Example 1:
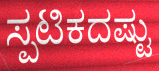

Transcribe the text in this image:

ಸ್ಪಟಿಕದಷ್ಟು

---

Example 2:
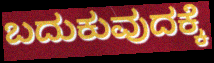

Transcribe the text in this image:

ಬದುಕುವುದಕ್ಕೆ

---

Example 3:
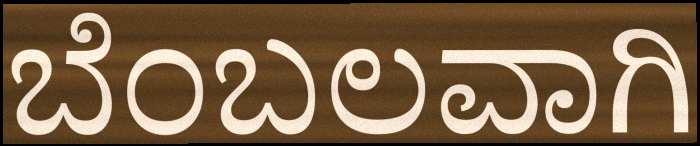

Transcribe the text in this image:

ಬೆಂಬಲವಾಗಿ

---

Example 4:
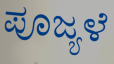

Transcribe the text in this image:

ಪೂಜ್ಯಳೆ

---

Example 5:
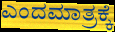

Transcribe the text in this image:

ಎಂದಮಾತ್ರಕ್ಕೆ